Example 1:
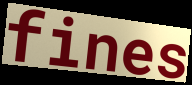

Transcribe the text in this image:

fines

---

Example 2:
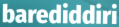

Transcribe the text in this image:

barediddiri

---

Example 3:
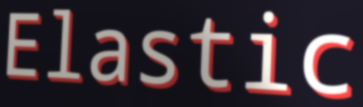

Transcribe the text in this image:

Elastic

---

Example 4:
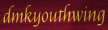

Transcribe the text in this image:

dmkyouthwing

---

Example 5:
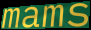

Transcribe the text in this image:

mams